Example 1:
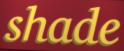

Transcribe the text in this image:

shade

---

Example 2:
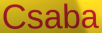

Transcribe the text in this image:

Csaba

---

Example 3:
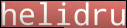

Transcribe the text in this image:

helidru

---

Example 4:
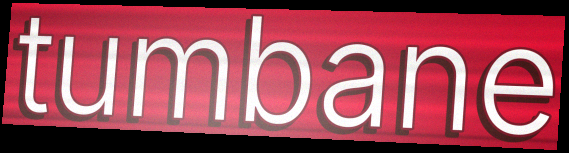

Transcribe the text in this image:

tumbane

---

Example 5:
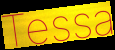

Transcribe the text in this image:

Tessa